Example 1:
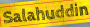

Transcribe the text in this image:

Salahuddin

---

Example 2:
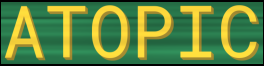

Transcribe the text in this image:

ATOPIC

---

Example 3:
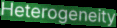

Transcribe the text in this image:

Heterogeneity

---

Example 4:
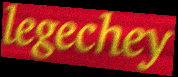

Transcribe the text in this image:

legechey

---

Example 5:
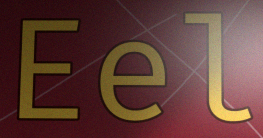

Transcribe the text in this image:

Eel